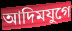
আদিমযুগে